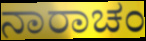
ನಾರಾಚಂ